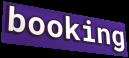
booking